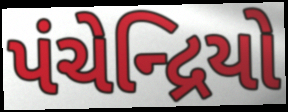
પંચેન્દ્રિયો